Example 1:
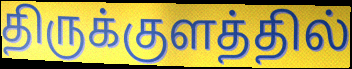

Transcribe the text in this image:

திருக்குளத்தில்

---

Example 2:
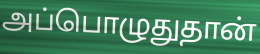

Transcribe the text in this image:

அப்பொழுதுதான்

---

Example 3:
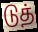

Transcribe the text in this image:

டுத்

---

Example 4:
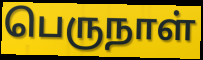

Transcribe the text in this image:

பெருநாள்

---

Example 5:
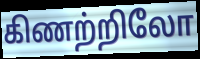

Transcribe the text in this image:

கிணற்றிலோ